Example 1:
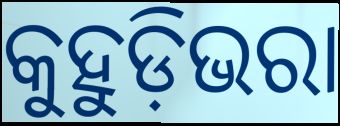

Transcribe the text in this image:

କୁହୁଡ଼ିଭରା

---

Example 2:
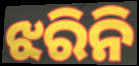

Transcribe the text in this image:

ଝରିନି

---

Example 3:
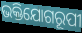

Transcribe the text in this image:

ଭକ୍ତିଯୋଗରୂପୀ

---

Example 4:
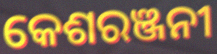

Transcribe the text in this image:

କେଶରଞ୍ଜନୀ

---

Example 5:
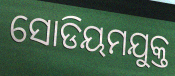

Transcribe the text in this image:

ସୋଡିୟମଯୁକ୍ତ